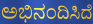
ಅಭಿನಂದಿಸಿದೆ